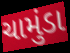
ચામુંડા